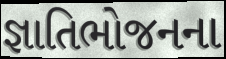
જ્ઞાતિભોજનના